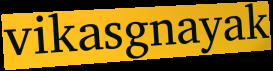
vikasgnayak